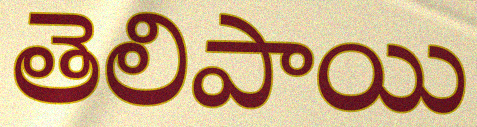
తెలిపాయి